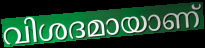
വിശദമായാണ്